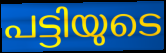
പട്ടിയുടെ